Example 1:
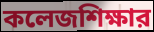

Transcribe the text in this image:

কলেজশিক্ষার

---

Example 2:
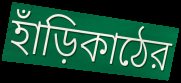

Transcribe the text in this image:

হাঁড়িকাঠের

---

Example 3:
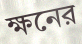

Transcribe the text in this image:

ক্ষনের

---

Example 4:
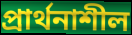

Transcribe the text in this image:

প্রার্থনাশীল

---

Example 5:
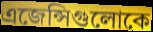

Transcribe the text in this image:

এজেন্সিগুলোকে